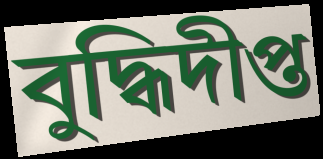
বুদ্ধিদীপ্ত